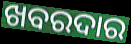
ଖବରଦାର